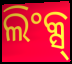
ଲିଂକ୍ସ୍